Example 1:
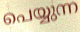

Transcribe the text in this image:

പെയ്യുന്ന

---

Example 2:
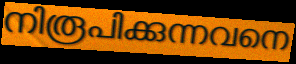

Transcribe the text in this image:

നിരൂപിക്കുന്നവനെ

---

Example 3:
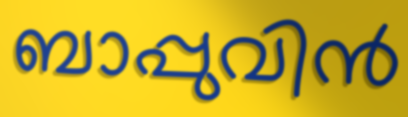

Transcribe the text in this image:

ബാപ്പുവിൻ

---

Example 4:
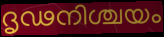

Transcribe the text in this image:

ദൃഢനിശ്ചയം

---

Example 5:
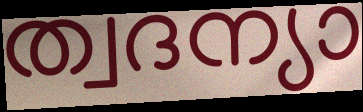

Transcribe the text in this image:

ത്വദന്യാ